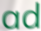
ad